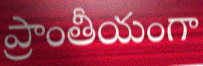
ప్రాంతీయంగా